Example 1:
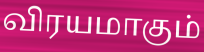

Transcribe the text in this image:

விரயமாகும்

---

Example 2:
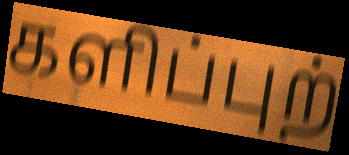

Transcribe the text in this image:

களிப்புற்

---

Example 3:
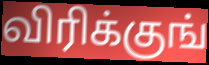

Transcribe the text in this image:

விரிக்குங்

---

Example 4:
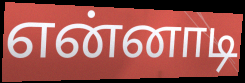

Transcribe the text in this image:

என்னாடி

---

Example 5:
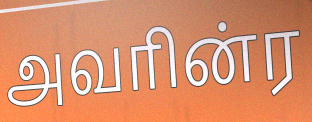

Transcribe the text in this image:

அவரின்ர